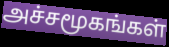
அச்சமூகங்கள்